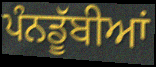
ਪੰਨਡੂੱਬੀਆਂ